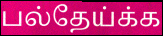
பல்தேய்க்க